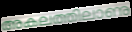
അകലത്തിലാണു